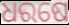
ଧରଷେ